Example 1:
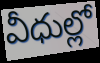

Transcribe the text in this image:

వీధుల్లో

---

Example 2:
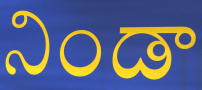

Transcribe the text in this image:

నిండా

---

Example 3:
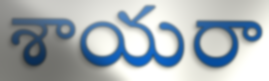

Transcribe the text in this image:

శాయరా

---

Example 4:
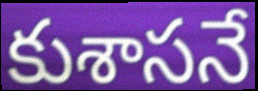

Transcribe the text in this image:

కుశాసనే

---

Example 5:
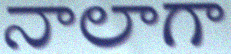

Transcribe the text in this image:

నాలాగా